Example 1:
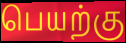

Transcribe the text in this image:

பெயற்கு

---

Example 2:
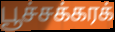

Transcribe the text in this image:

பூச்சக்கரக்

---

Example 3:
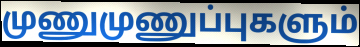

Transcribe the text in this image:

முணுமுணுப்புகளும்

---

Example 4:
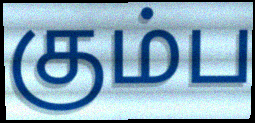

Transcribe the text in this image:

கும்ப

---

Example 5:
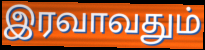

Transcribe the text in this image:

இரவாவதும்